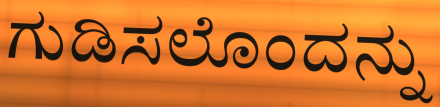
ಗುಡಿಸಲೊಂದನ್ನು